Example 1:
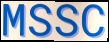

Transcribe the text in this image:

MSSC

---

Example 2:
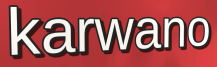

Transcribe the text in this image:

karwano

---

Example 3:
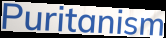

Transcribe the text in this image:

Puritanism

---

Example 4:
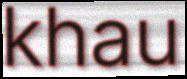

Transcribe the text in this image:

khau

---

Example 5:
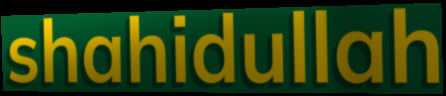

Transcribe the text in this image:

shahidullah